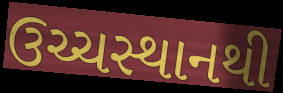
ઉચ્ચસ્થાનથી